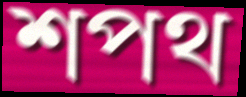
শপথ